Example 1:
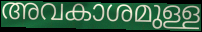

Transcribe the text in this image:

അവകാശമുള്ള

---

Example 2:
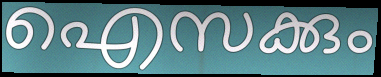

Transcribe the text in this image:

ഐസക്കും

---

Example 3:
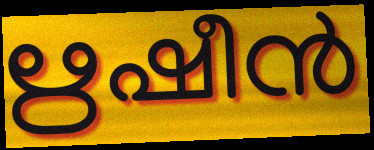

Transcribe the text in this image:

ഋഷീൻ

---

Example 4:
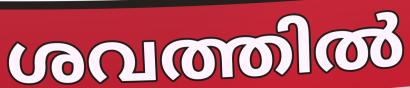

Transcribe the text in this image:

ശവത്തിൽ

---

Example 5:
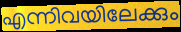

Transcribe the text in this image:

എന്നിവയിലേക്കും